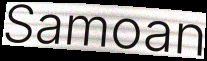
Samoan